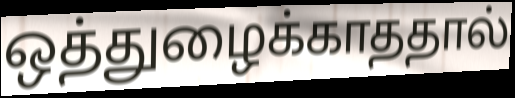
ஒத்துழைக்காததால்